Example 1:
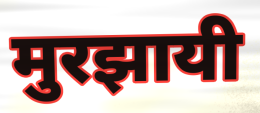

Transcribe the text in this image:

मुरझायी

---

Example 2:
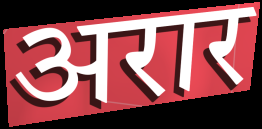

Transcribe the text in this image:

अरार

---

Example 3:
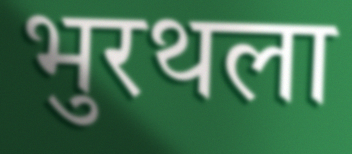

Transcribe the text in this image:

भुरथला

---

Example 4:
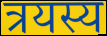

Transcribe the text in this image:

त्रयस्य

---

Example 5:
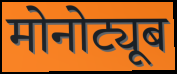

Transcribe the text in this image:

मोनोट्यूब